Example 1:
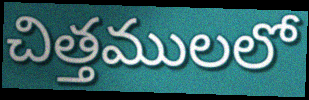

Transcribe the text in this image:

చిత్తములలో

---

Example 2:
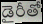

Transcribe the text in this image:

డైరీతో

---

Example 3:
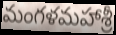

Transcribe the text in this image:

మంగళమహాశ్రీ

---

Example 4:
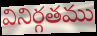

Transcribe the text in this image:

వినిర్గతము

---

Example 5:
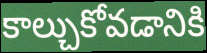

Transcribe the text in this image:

కాల్చుకోవడానికి